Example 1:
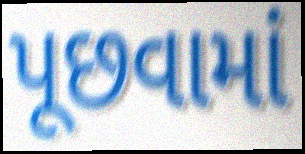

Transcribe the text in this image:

પૂછવામાં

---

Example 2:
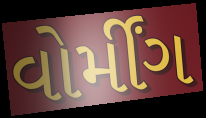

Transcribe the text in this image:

વોર્મીંગ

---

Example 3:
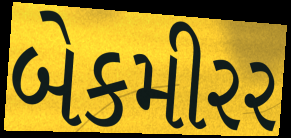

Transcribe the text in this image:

બેકમીરર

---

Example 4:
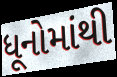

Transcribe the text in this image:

ધૂનોમાંથી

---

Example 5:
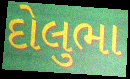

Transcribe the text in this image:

દોલુભા